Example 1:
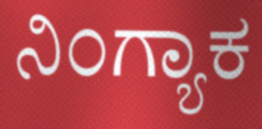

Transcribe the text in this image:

ನಿಂಗ್ಯಾಕ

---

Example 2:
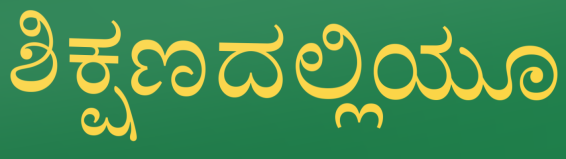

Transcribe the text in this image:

ಶಿಕ್ಷಣದಲ್ಲಿಯೂ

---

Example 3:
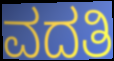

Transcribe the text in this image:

ವದತಿ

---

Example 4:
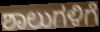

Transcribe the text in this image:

ಶಾಲುಗಳಿಗೆ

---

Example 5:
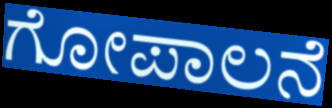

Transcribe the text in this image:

ಗೋಪಾಲನೆ